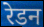
रेडन